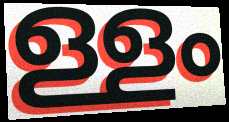
ള്ളം